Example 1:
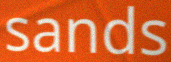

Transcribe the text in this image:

sands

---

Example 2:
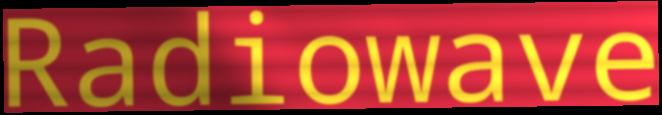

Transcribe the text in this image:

Radiowave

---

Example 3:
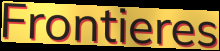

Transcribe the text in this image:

Frontieres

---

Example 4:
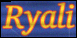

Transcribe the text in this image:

Ryali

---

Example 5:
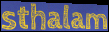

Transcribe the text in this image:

sthalam